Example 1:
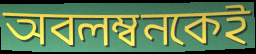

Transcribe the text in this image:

অবলম্বনকেই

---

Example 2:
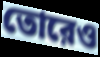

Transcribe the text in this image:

তোরেও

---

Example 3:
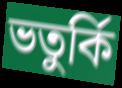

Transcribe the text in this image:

ভতুর্কি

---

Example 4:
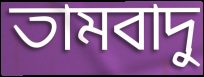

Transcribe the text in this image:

তামবাদু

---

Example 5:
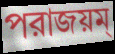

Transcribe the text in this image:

পরাজয়ম্